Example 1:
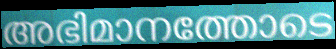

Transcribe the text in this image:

അഭിമാനത്തോടെ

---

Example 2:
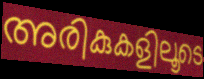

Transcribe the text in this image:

അരികുകളിലൂടെ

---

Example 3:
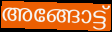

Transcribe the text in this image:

അങ്ങോട്ട്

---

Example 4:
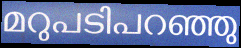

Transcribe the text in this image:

മറുപടിപറഞ്ഞു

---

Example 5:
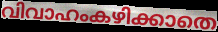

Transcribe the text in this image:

വിവാഹംകഴിക്കാതെ